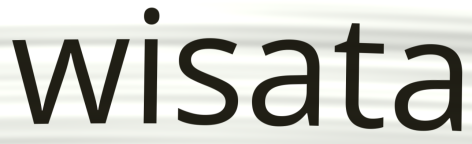
wisata